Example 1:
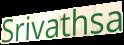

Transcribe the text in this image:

Srivathsa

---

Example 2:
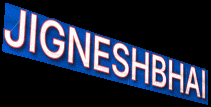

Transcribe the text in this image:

JIGNESHBHAI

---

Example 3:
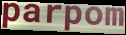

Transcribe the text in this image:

parpom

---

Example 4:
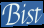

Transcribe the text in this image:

Bist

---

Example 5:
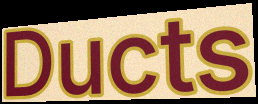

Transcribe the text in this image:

Ducts